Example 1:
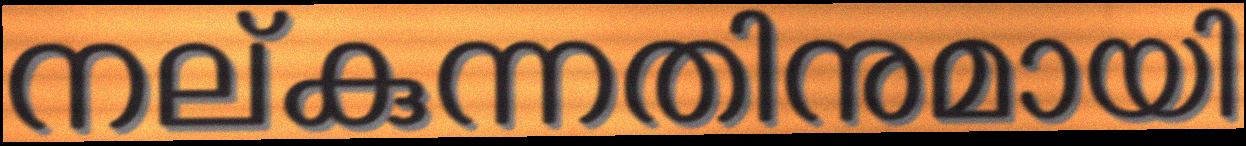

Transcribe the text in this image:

നല്‌കുന്നതിനുമായി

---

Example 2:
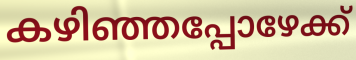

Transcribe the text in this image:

കഴിഞ്ഞപ്പോഴേക്ക്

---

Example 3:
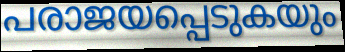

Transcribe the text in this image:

പരാജയപ്പെടുകയും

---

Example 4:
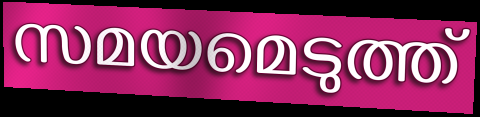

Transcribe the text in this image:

സമയമെടുത്ത്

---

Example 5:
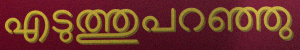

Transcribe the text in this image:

എടുത്തുപറഞ്ഞു